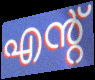
എന്റ്